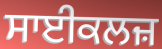
ਸਾਈਕਲਜ਼